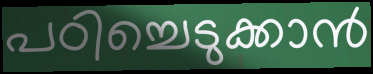
പഠിച്ചെടുക്കാൻ